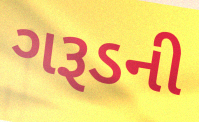
ગરૂડની